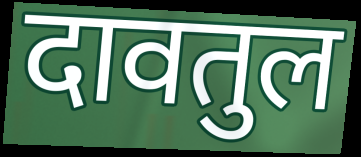
दावतुल